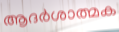
ആദർശാത്മക